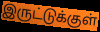
இருட்டுக்குள்